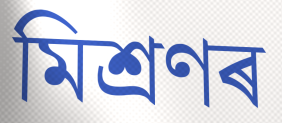
মিশ্ৰণৰ